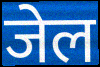
जेल